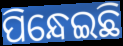
ପିନ୍ଧେଇଛି